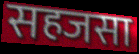
सहजसा